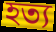
হত্য